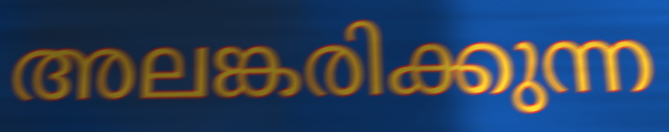
അലങ്കരിക്കുന്ന